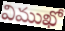
విముఖో